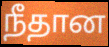
நீதான